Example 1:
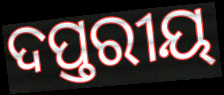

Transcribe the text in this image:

ଦପ୍ତରୀୟ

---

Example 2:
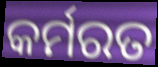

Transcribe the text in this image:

କର୍ମରତ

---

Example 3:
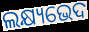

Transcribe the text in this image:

ଲକ୍ଷ୍ୟଭେଦ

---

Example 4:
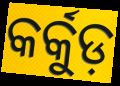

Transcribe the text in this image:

କର୍କୁଡ଼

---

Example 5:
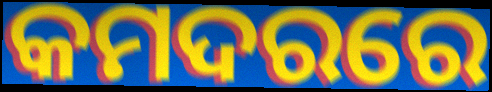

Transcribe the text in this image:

କମଦରରେ